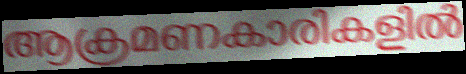
ആക്രമണകാരികളിൽ